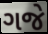
ગજે